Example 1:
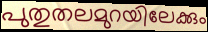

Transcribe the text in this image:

പുതുതലമുറയിലേക്കും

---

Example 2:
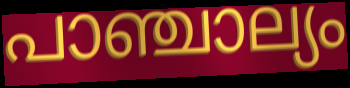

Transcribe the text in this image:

പാഞ്ചാല്യം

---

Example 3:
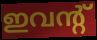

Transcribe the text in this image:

ഇവന്റ്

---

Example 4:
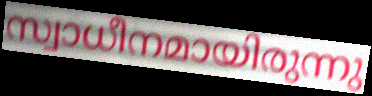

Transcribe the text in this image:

സ്വാധീനമായിരുന്നു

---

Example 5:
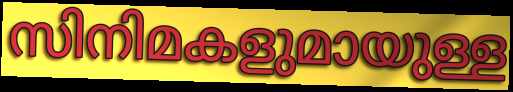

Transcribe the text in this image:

സിനിമകളുമായുള്ള